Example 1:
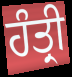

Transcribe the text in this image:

ਹੰਤ੍ਰੀ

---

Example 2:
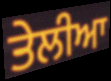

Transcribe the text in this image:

ਤੇਲੀਆ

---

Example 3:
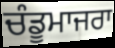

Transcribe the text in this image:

ਚੰਡੂਮਾਜਰਾ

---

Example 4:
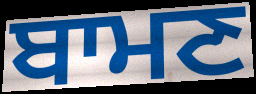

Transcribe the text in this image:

ਬਾਮਣ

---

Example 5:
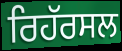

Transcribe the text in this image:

ਰਿਹੱਰਸਲ